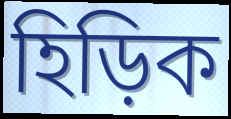
হিড়িক